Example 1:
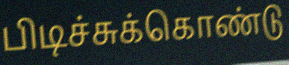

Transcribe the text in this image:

பிடிச்சுக்கொண்டு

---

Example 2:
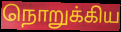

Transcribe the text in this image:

நொறுக்கிய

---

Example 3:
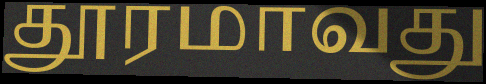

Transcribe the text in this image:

தூரமாவது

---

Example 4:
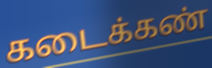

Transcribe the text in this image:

கடைக்கண்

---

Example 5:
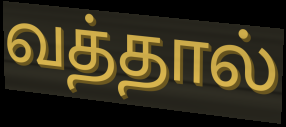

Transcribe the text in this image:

வத்தால்